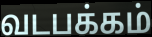
வடபக்கம்